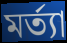
মর্ত্যা